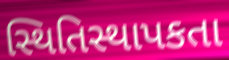
સ્થિતિસ્થાપકતા